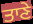
ਤਾਣੇ